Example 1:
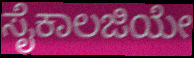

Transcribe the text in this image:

ಸೈಕಾಲಜಿಯೇ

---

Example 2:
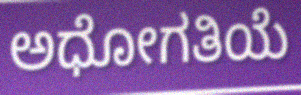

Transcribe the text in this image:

ಅಧೋಗತಿಯೆ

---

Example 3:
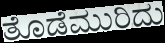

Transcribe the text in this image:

ತೊಡೆಮುರಿದು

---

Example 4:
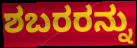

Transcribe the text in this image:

ಶಬರರನ್ನು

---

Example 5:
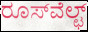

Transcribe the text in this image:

ರೂಸ್‌ವೆಲ್ಟ್